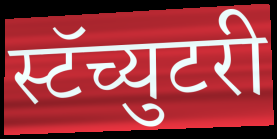
स्टॅच्युटरी